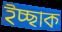
ইচ্ছাক